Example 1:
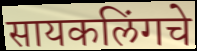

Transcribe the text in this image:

सायकलिंगचे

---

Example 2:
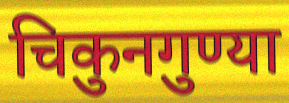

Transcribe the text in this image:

चिकुनगुण्या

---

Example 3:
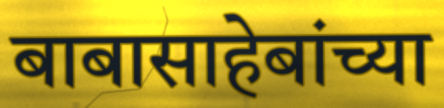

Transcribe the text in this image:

बाबासाहेबांच्‍या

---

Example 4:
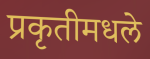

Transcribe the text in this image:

प्रकृतीमधले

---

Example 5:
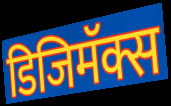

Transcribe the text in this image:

डिजिमॅक्स